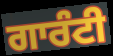
ਗਾਰੰਟੀ